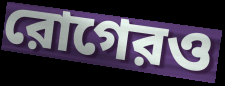
রোগেরও